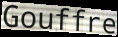
Gouffre